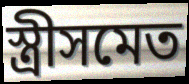
স্ত্রীসমেত